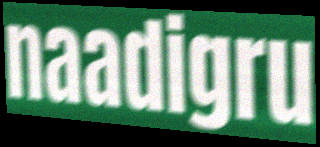
naadigru